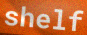
shelf